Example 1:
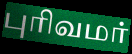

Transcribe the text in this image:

புரிவமர்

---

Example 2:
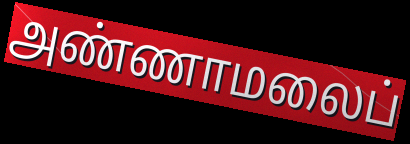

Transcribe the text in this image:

அண்ணாமலைப்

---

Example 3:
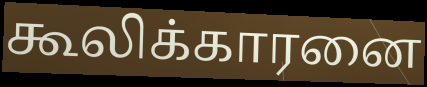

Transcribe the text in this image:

கூலிக்காரனை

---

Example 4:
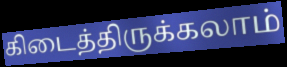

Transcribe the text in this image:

கிடைத்திருக்கலாம்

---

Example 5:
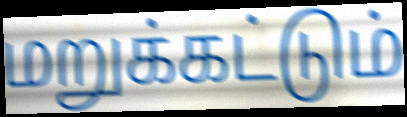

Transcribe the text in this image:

மறுக்கட்டும்